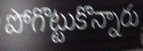
పోగొట్టుకొన్నారు